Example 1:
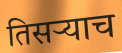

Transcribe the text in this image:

तिसर्‍याच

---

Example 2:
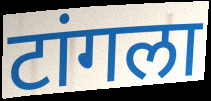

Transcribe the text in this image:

टांगला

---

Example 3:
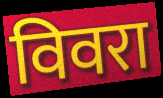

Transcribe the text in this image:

विवरा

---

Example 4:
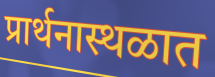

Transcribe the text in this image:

प्रार्थनास्थळात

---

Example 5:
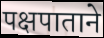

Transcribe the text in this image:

पक्षपाताने